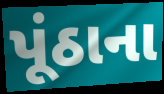
પૂંઠાના